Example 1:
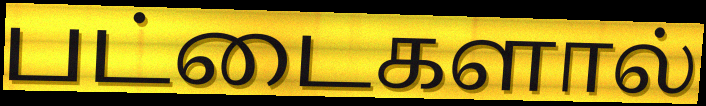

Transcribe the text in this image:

பட்டைகளால்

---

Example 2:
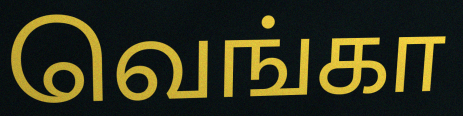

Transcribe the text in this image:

வெங்கா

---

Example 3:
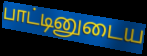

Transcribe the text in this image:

பாட்டினுடைய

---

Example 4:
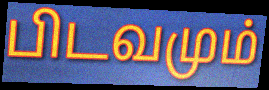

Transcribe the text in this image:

பிடவமும்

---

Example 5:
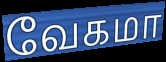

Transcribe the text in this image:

வேகமா